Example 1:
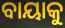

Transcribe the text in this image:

ବାୟାକୁ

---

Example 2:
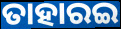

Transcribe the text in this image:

ତାହାରଇ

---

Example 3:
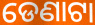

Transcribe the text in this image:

ଡେଣାଟା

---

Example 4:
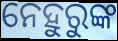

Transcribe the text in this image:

ନେହୁରୁଙ୍କ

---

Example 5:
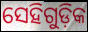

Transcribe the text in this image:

ସେହିଗୁଡ଼ିକ